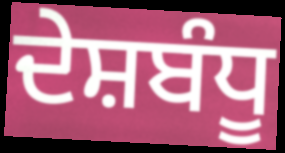
ਦੇਸ਼ਬੰਧੂ